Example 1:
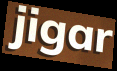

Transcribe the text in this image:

jigar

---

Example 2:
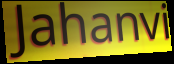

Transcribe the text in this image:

Jahanvi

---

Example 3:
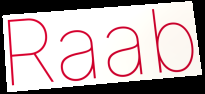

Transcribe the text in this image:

Raab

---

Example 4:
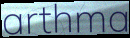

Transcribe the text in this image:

arthma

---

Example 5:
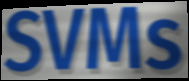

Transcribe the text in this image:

SVMs